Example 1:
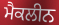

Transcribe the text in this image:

ਮੈਕਲੀਨ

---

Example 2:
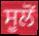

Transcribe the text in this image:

ਸੂਲੋਂ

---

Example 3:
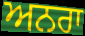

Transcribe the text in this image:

ਅਨਰਾ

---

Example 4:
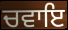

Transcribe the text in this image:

ਚਵਾਇ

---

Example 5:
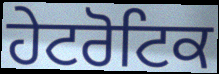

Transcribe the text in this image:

ਹੇਟਰੋਟਿਕ